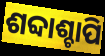
ଶବ୍ଦାଶ୍ଚାପି